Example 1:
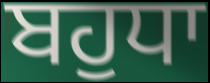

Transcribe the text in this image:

ਬਹੁਧਾ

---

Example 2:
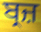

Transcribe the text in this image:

ਬ੍ਰਜ਼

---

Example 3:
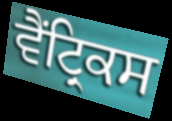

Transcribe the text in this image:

ਵੈਂਟ੍ਰਿਕਸ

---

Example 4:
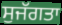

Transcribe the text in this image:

ਸੁਜੱਗਤਾ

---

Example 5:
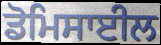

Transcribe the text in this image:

ਡੋਮਿਸਾਈਲ